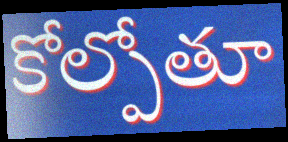
కోల్పోతూ